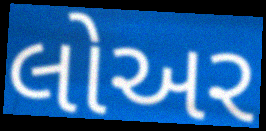
લોઅર